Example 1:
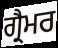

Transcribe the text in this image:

ਗ੍ਰੈਮਰ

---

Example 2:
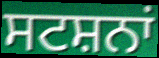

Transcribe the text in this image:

ਸਟਸ਼ਨਾਂ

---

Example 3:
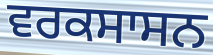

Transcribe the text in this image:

ਵਰਕਸਾਸਨ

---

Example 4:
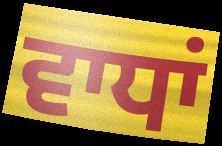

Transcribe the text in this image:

ਵਾਧਾਂ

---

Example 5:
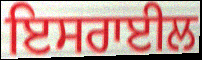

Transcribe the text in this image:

ਇਸਰਾਈਲ